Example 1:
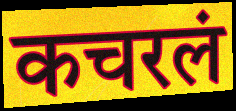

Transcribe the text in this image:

कचरलं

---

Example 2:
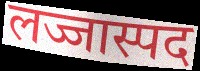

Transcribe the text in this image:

लज्जास्पद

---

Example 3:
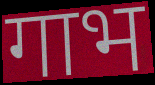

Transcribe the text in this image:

गाभ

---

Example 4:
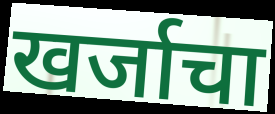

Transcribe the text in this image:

खर्जाचा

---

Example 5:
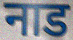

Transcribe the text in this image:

नाड